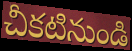
చీకటినుండి